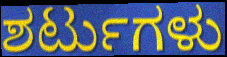
ಶರ್ಟುಗಳು